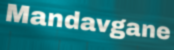
Mandavgane